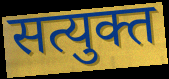
सत्युक्त